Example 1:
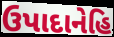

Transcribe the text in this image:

ઉપાદાનેહિ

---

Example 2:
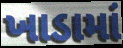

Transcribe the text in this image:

ખાડામાં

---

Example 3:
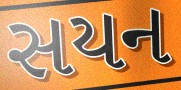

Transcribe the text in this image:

સયન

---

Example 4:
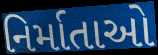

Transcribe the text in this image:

નિર્માતાઓ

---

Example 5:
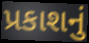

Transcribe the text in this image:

પ્રકાશનું